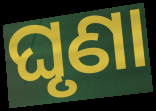
ଘୃଣା